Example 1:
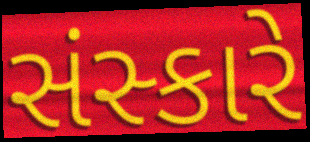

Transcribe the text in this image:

સંસ્કારે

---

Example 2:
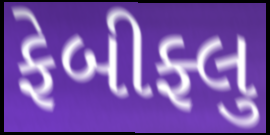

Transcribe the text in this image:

ફેબીફ્લુ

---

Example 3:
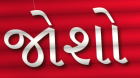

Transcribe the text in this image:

જોશો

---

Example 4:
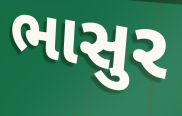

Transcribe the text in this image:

ભાસુર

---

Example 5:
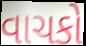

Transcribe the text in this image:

વાચકો